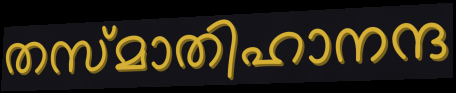
തസ്മാതിഹാനന്ദ